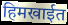
हिमखाईत